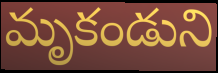
మృకండుని